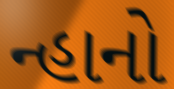
ન્હાનો